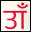
उाँ